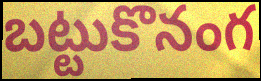
బట్టుకొనంగ